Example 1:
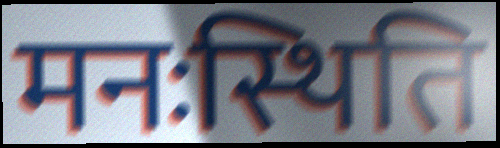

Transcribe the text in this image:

मनःस्थिति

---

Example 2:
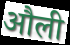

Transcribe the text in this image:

औली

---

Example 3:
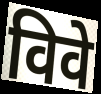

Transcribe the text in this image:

विवे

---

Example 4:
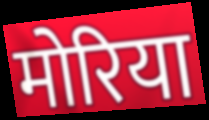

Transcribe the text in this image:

मोरिया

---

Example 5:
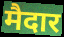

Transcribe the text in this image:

मैदार